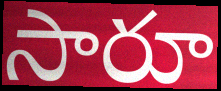
సారూ